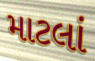
માટલાં